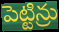
పెట్టిన్రు